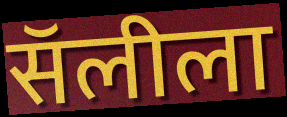
सॅलीला